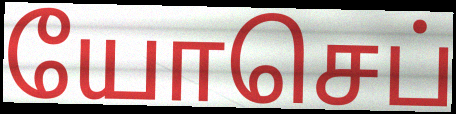
யோசெப்